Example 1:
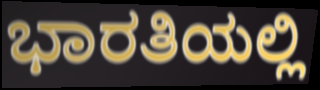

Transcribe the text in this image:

ಭಾರತಿಯಲ್ಲಿ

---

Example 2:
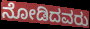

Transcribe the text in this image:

ನೋಡಿದವರು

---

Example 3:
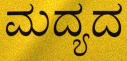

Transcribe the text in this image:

ಮದ್ಯದ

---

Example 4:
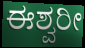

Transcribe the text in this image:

ಈಶ್ವರೀ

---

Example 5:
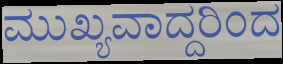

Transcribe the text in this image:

ಮುಖ್ಯವಾದ್ದರಿಂದ